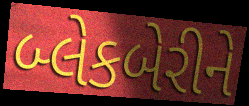
બ્લેકબેરીને